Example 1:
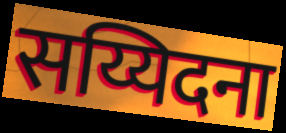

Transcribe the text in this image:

सय्यिदना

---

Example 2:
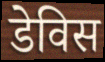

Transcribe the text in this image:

डेविस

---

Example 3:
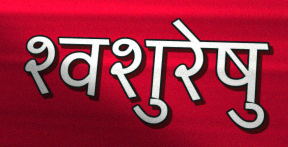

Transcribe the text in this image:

श्वशुरेषु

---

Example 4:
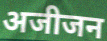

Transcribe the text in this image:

अजीजन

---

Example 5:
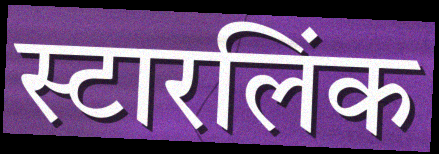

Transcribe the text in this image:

स्टारलिंक